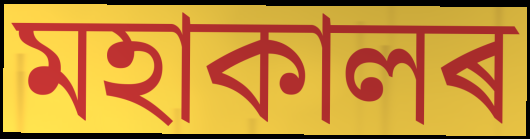
মহাকালৰ